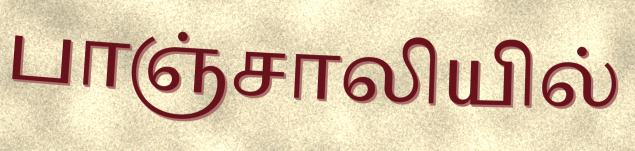
பாஞ்சாலியில்